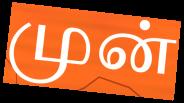
முன்